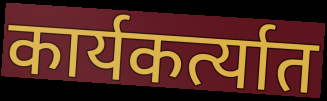
कार्यकर्त्यात